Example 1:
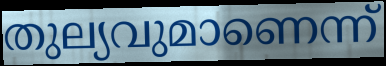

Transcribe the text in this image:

തുല്യവുമാണെന്ന്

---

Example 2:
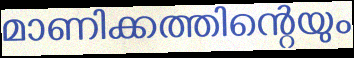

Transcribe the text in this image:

മാണിക്കത്തിന്റെയും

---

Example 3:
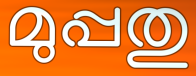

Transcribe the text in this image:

മുപ്പതു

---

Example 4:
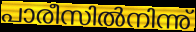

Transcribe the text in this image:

പാരീസിൽനിന്നു്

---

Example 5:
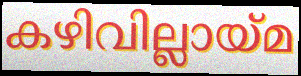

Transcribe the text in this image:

കഴിവില്ലായ്മ